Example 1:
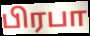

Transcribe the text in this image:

பிரபா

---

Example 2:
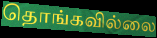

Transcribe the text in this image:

தொங்கவில்லை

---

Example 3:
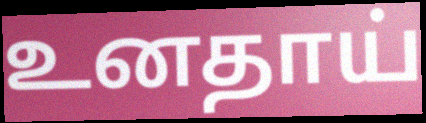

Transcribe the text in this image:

உனதாய்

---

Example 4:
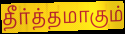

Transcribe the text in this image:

தீர்த்தமாகும்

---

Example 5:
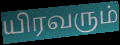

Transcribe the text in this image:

யிரவரும்